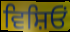
ਵਿਸ਼ਿਓਂ